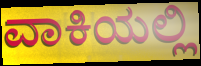
ವಾಕಿಯಲ್ಲಿ